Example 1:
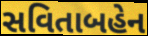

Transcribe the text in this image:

સવિતાબહેન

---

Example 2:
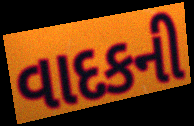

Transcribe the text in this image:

વાદકની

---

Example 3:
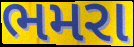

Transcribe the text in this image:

ભમરા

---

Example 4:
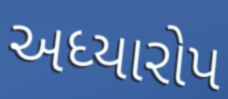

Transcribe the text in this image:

અધ્યારોપ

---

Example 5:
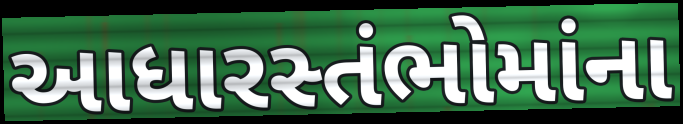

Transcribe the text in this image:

આધારસ્તંભોમાંના